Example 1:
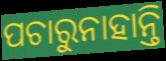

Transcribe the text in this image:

ପଚାରୁନାହାନ୍ତି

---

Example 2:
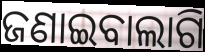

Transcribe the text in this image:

ଜଣାଇବାଲାଗି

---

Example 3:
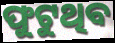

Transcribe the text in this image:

ଫୁଟୁଥିବ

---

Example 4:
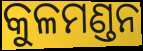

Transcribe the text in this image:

କୁଳମଣ୍ଡନ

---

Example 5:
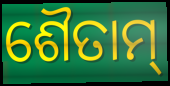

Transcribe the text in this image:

ଶୈତାମ୍